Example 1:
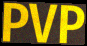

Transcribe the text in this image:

PVP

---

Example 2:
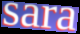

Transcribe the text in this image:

sara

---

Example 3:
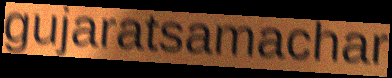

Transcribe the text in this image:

gujaratsamachar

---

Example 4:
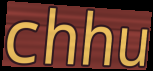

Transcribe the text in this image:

chhu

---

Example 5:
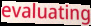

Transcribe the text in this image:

evaluating